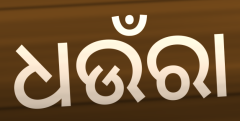
ଧଉଁରା